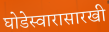
घोडेस्वारासारखी